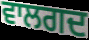
ਵਾਲਗਦ